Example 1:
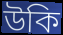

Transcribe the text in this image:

উকি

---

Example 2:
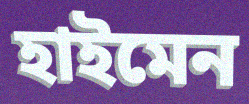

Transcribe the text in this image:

হাইমেন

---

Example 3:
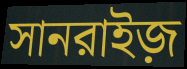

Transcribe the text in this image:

সানরাইজ়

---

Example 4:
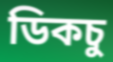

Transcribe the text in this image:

ডিকচু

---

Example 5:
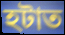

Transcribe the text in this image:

হটাত